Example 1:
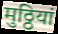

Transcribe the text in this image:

मुठ्ठियां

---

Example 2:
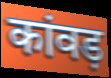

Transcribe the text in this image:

कांवड़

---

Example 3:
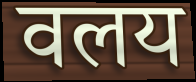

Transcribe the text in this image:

वलय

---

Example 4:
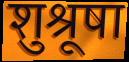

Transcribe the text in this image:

शुश्रूषा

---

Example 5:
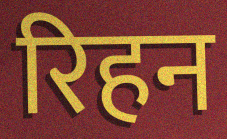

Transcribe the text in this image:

रिहन